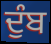
ਦੁੰਬ